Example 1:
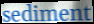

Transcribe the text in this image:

sediment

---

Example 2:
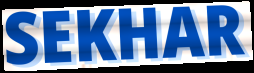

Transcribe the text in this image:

SEKHAR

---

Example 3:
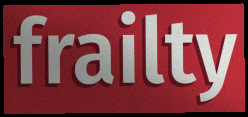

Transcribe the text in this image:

frailty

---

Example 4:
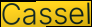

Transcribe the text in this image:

Cassel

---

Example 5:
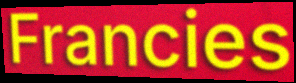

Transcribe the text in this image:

Francies